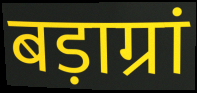
बड़ाग्रां